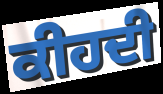
ਕੀਹਦੀ